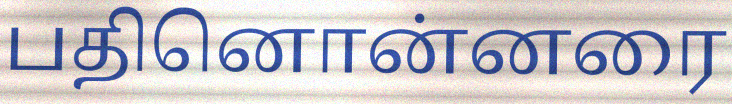
பதினொன்னரை